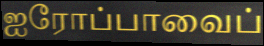
ஐரோப்பாவைப்